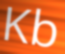
Kb